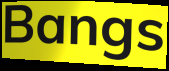
Bangs